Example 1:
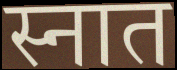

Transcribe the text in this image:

स्नात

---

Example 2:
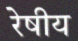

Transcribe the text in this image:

रेषीय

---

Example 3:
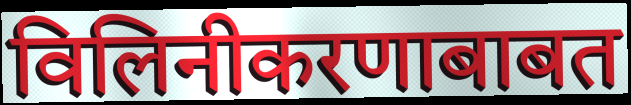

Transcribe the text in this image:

विलिनीकरणाबाबत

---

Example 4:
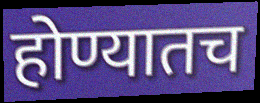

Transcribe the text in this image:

होण्यातच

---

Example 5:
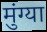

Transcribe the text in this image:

मुंग्या